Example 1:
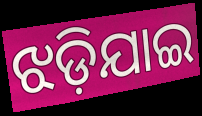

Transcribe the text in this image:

ଝଡ଼ିଯାଇ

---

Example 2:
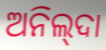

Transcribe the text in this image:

ଅନିଲ୍‌ଦା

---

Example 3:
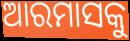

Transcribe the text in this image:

ଆରମାସକୁ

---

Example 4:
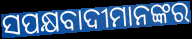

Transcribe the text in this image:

ସପକ୍ଷବାଦୀମାନଙ୍କର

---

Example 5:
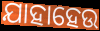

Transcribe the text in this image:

ଯାହାହେଉ